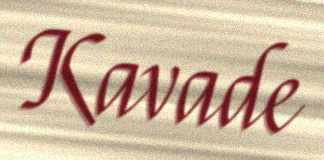
Kavade